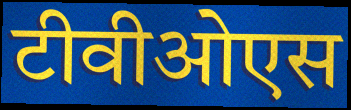
टीवीओएस